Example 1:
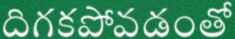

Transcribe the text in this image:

దిగకపోవడంతో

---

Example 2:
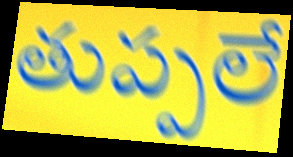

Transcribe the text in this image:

తుప్పలే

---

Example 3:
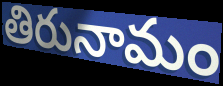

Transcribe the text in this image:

తిరునామం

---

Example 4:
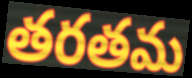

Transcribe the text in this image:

తరతమ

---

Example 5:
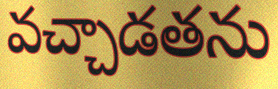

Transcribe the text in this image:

వచ్చాడతను